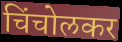
चिंचोलकर